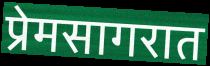
प्रेमसागरात